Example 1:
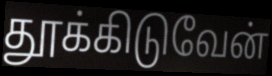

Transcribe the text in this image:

தூக்கிடுவேன்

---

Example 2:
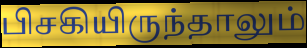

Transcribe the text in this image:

பிசகியிருந்தாலும்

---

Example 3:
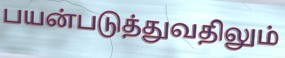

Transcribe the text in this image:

பயன்படுத்துவதிலும்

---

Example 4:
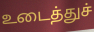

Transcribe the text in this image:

உடைத்துச்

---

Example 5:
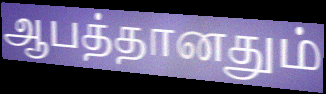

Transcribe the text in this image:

ஆபத்தானதும்